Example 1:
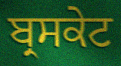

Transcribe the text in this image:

ਬ੍ਰਸਕੇਟ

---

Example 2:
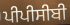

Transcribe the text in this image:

ਪੀਪੀਸੀਬੀ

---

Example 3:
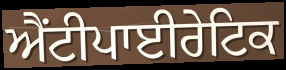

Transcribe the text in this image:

ਐਂਟੀਪਾਈਰੇਟਿਕ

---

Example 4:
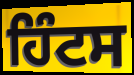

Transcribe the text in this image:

ਹਿੰਟਸ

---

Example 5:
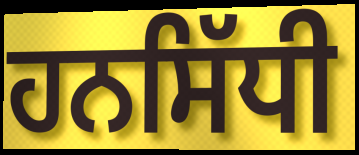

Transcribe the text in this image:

ਹਨਸਿੱਧੀ